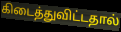
கிடைத்துவிட்டதால்